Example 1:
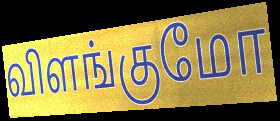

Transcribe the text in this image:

விளங்குமோ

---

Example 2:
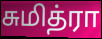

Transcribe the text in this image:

சுமித்ரா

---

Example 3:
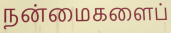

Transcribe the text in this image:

நன்மைகளைப்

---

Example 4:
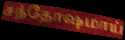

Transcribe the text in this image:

சந்தோஷமாய்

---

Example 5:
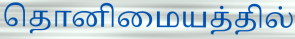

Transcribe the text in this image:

தொனிமையத்தில்